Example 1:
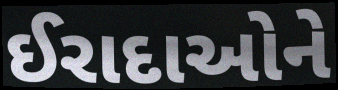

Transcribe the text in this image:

ઈરાદાઓને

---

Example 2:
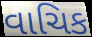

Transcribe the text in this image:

વાચિક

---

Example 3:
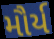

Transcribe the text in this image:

મૌર્ય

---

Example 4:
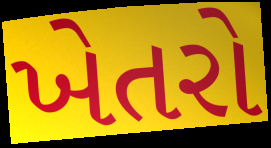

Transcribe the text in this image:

ખેતરો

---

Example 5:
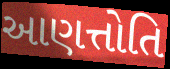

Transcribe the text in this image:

આણત્તોતિ